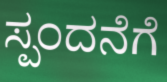
ಸ್ಪಂದನೆಗೆ